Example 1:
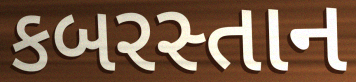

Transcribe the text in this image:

કબરસ્તાન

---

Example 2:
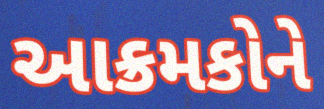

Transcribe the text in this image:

આક્રમકોને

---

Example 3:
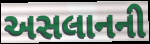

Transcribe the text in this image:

અસલાનની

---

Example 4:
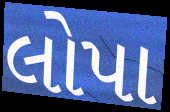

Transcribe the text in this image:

લોપા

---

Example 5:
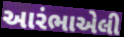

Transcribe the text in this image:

આરંભાએલી